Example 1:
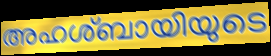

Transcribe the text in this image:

അഹശ്ബായിയുടെ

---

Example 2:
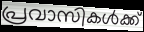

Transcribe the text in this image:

പ്രവാസികൾക്ക്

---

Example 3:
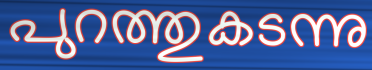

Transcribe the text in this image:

പുറത്തുകടന്നു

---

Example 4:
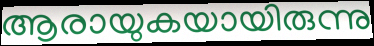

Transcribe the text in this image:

ആരായുകയായിരുന്നു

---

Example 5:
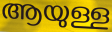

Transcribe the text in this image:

ആയുള്ള